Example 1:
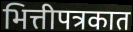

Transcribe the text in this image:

भित्तीपत्रकात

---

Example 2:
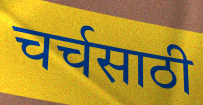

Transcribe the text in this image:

चर्चसाठी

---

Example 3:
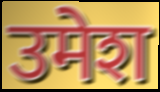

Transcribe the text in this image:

उमेश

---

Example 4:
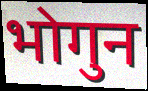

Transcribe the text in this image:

भोगुन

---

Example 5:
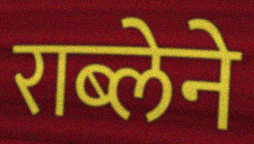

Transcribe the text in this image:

राब्लेने